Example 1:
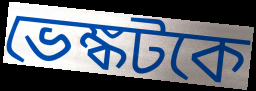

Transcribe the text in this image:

ভেঙ্কটকে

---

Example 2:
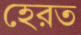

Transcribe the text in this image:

হেরত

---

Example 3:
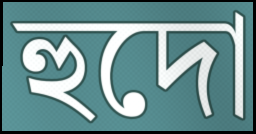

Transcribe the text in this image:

হুদো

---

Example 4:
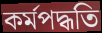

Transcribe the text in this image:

কর্মপদ্ধতি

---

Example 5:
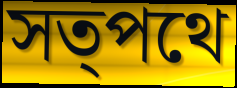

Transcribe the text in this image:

সত্পথে